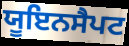
ਯੂਇਨਸੈਪਟ